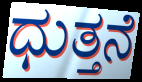
ಧುತ್ತನೆ